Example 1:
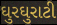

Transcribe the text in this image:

ઘુરઘુરાટી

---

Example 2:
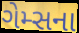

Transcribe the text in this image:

ગેમ્સના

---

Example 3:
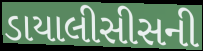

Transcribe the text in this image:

ડાયાલીસીસની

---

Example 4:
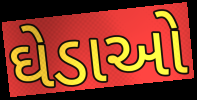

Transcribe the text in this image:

ઘેડાઓ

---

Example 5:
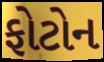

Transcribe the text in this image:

ફોટોન